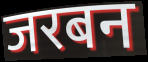
जरबन